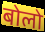
बोलो